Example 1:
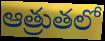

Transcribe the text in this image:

ఆత్రుతలో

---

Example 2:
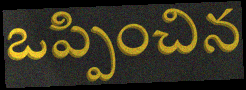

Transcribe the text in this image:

ఒప్పించిన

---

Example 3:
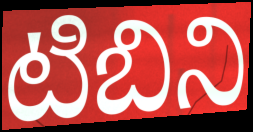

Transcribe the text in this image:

టిబిని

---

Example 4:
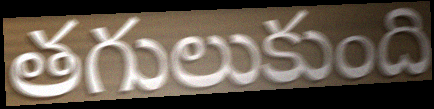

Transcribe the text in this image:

తగులుకుంది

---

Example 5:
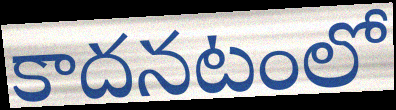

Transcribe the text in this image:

కాదనటంలో